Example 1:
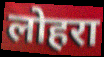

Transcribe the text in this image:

लोहरा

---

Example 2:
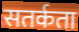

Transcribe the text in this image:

सतर्कता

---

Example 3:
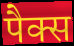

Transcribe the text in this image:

पैक्स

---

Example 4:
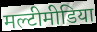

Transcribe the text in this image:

मल्टीमीडिया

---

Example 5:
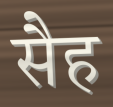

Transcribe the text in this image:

सैह